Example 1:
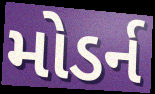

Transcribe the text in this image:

મોડર્ન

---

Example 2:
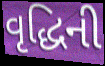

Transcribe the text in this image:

વૃદ્ધિની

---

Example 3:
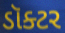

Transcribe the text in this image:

ડૉક્ટર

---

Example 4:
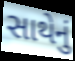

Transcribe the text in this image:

સાથેનું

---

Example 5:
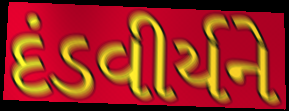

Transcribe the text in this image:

દંડવીર્યને